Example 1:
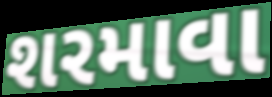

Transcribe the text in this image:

શરમાવા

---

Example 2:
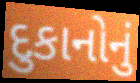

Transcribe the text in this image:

દુકાનોનું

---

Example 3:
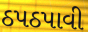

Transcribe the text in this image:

ઠપઠપાવી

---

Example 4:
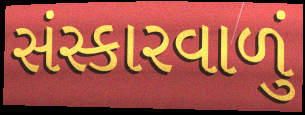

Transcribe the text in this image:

સંસ્કારવાળું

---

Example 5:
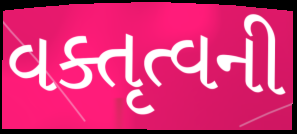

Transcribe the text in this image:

વક્તૃત્વની